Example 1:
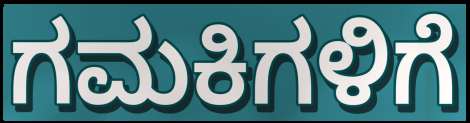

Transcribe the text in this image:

ಗಮಕಿಗಳಿಗೆ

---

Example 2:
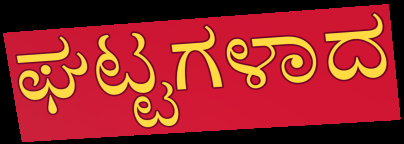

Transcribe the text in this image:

ಘಟ್ಟಗಳಾದ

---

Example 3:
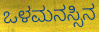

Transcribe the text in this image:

ಒಳಮನಸ್ಸಿನ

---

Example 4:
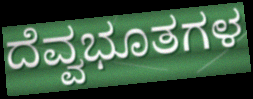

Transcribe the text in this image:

ದೆವ್ವಭೂತಗಳ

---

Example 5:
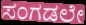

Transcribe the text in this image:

ಸಂಗಡಲೇ